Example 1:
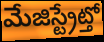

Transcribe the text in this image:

మేజిస్ట్రేట్తో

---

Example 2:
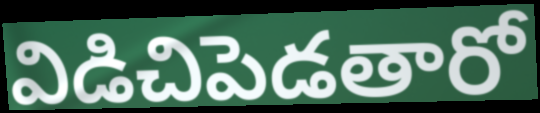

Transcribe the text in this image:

విడిచిపెడతారో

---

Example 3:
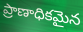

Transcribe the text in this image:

ప్రాణాధికమైన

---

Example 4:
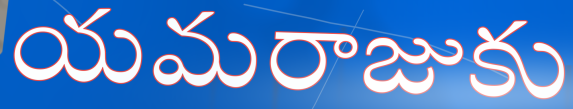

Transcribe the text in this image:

యమరాజుకు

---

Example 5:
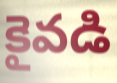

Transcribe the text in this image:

కైవడి